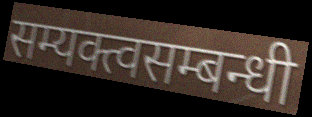
सम्यक्त्वसम्बन्धी